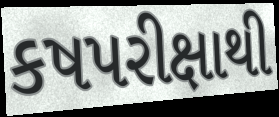
કષપરીક્ષાથી